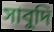
সাবুদি